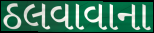
ઠલવાવાના